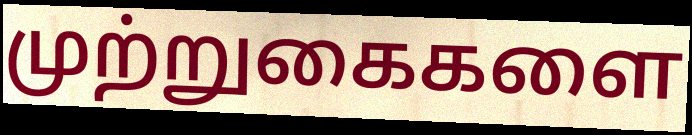
முற்றுகைகளை